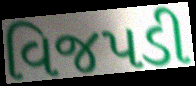
વિજપડી